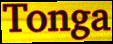
Tonga